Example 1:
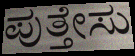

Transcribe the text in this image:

ಪುತ್ತೇಸು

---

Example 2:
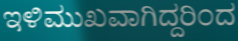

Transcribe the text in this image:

ಇಳಿಮುಖವಾಗಿದ್ದರಿಂದ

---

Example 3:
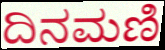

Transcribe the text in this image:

ದಿನಮಣಿ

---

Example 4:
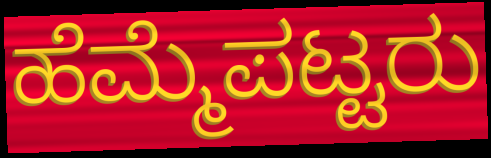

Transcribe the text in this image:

ಹೆಮ್ಮೆಪಟ್ಟರು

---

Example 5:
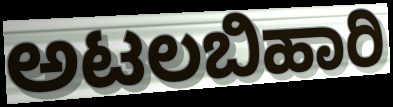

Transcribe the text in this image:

ಅಟಲಬಿಹಾರಿ